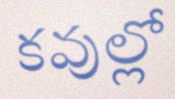
కవుల్లో